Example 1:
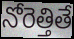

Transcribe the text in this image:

నోరెత్తితే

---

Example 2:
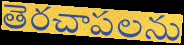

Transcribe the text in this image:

తెరచాపలను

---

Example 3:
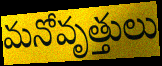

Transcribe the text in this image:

మనోవృత్తులు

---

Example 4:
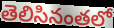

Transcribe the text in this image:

తెలిసినంతలో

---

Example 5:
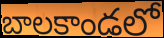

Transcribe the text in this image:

బాలకాండలో